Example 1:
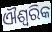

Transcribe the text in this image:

ଐଶ୍ୱରିକ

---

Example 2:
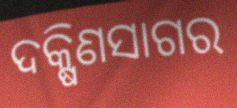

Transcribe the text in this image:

ଦକ୍ଷିଣସାଗର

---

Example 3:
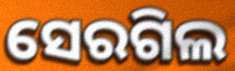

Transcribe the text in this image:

ସେରଗିଲ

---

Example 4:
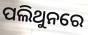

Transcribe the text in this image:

ପଲିଥୁନରେ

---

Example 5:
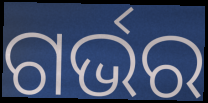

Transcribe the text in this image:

ଗର୍ଭର